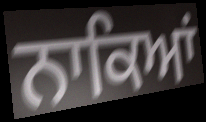
ਨਾਕਿਆਂ